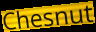
Chesnut